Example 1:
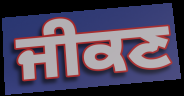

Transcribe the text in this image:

ਜੀਕਣ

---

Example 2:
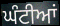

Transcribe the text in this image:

ਘੰਟੀਆਂ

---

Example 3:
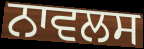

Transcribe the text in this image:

ਨਾਵਲਸ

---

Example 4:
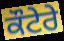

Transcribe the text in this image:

ਕੌਟੇਰੇ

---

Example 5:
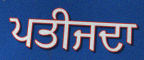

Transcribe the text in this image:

ਪਤੀਜਦਾ